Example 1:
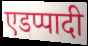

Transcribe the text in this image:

एडप्पादी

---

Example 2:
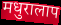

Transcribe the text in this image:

मधुरालाप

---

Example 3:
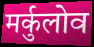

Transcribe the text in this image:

मर्कुलोव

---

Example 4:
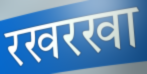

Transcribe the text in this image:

रखरखा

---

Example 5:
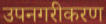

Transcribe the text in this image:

उपनगरीकरण